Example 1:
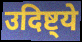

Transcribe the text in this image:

उदिष्ट्ये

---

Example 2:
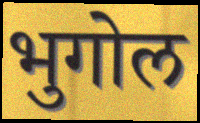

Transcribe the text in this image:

भुगोल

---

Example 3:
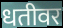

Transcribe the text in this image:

धतीवर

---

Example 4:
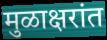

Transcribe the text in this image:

मुळाक्षरांत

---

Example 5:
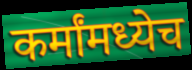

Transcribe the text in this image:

कर्मांमध्येच